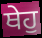
ਥੇਹੁ